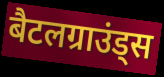
बैटलग्राउंड्स